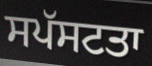
ਸਪੱਸਟਤਾ